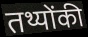
तथ्योंकी